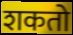
शकतो